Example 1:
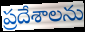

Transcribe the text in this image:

ప్రదేశాలను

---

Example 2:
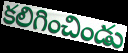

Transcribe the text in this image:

కలిగించిండు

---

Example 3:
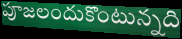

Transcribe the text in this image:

పూజలందుకొంటున్నది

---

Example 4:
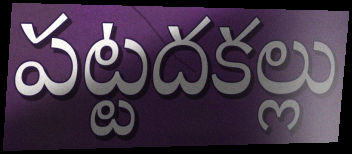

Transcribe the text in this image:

పట్టదకల్లు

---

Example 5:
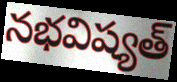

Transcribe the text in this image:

నభవిష్యత్